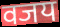
वजय